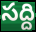
సద్ది